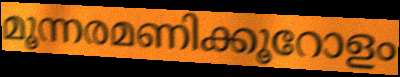
മൂന്നരമണിക്കൂറോളം